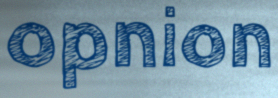
opnion